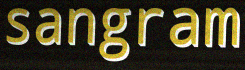
sangram